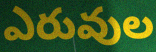
ఎరువుల